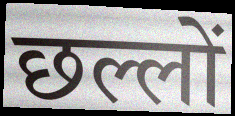
छल्लों